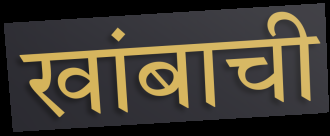
खांबाची